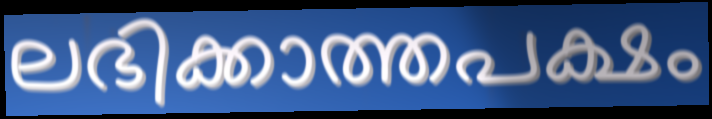
ലഭിക്കാത്തപക്ഷം